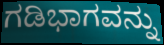
ಗಡಿಭಾಗವನ್ನು